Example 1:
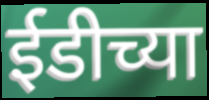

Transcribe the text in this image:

ईडीच्या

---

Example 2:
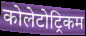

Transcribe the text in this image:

कोलेटोट्रिकम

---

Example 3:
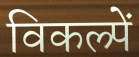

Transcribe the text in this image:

विकल्पें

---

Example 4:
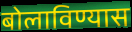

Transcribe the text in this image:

बोलाविण्यास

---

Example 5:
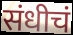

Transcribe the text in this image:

संधीचं